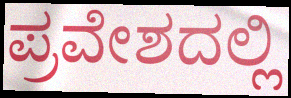
ಪ್ರವೇಶದಲ್ಲಿ